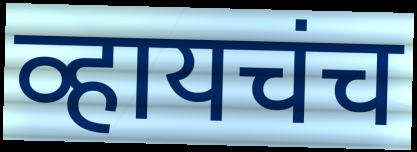
व्हायचंच